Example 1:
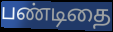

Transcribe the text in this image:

பண்டிதை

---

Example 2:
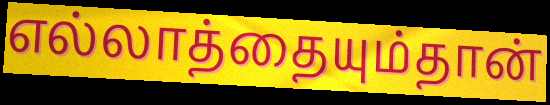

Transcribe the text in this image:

எல்லாத்தையும்தான்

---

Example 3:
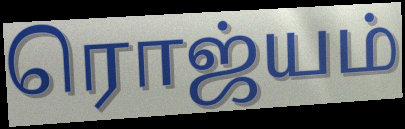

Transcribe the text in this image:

ரொஜ்யம்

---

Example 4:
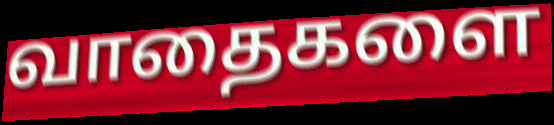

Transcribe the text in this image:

வாதைகளை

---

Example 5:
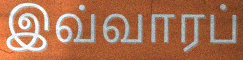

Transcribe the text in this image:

இவ்வாரப்